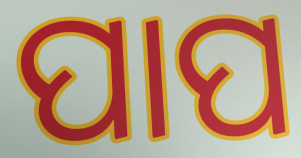
ପାପ